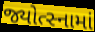
જ્યોત્સ્નામાં